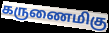
கருணைமிகு